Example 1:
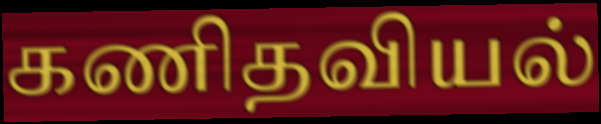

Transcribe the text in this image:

கணிதவியல்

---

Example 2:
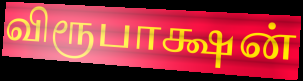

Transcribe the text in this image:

விரூபாக்ஷன்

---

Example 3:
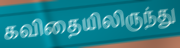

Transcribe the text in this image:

கவிதையிலிருந்து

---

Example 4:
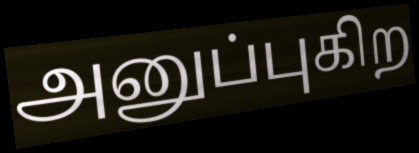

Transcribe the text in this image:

அனுப்புகிற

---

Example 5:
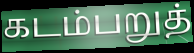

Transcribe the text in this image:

கடம்பறுத்